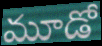
మూడో